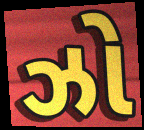
ઝો